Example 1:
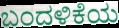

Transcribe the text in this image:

ಬಂದಳಿಕೆಯ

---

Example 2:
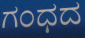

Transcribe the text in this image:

ಗಂಧದ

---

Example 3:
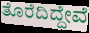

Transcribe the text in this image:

ತೊರೆದಿದ್ದೇವೆ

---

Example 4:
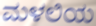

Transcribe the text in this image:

ಮಳಲಿಯ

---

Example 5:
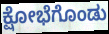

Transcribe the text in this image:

ಕ್ಷೋಭೆಗೊಂಡು